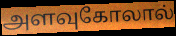
அளவுகோலால்